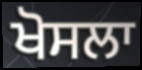
ਖੋਸਲਾ